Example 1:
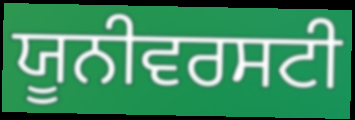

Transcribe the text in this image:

ਯੂਨੀਵਰਸਟੀ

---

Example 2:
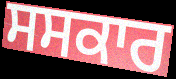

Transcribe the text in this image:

ਸਸਕਾਰ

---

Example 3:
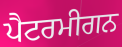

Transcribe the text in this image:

ਪੈਟਰਮੀਗਨ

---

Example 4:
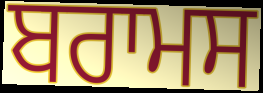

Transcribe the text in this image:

ਬਰਾਮਸ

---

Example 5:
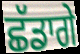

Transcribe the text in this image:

ਛੱਡਾਗੇ